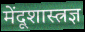
मेंदूशास्त्रज्ञ